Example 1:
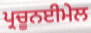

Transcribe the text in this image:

ਪ੍ਰਚੂਨਈਮੇਲ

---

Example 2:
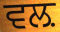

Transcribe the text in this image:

ਵਲ਼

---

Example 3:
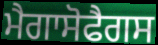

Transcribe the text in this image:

ਮੈਗਾਸੋਫੈਗਸ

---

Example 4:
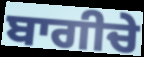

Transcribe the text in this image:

ਬਾਗੀਚੇ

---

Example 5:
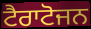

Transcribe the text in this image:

ਟੈਰਾਟੋਜਨ